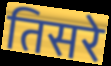
तिसरे